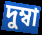
দুম্বা